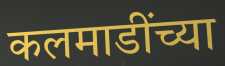
कलमाडींच्या